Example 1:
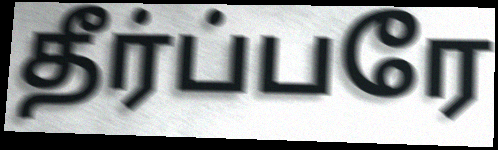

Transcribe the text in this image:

தீர்ப்பரே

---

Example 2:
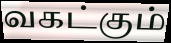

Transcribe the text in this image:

வகட்கும்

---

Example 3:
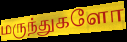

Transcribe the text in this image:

மருந்துகளோ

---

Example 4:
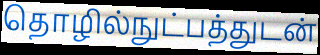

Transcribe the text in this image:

தொழில்நுட்பத்துடன்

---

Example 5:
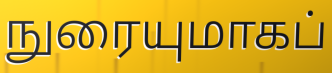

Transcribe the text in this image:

நுரையுமாகப்